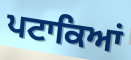
ਪਟਾਕਿਆਂ